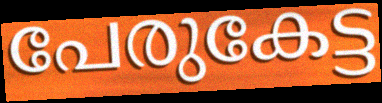
പേരുകേട്ട